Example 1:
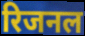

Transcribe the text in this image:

रिजनल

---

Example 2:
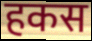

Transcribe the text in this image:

हकस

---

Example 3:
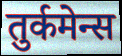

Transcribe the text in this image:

तुर्कमेन्स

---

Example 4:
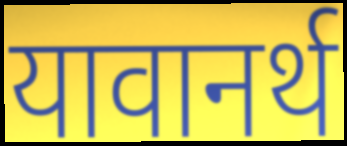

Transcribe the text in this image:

यावानर्थ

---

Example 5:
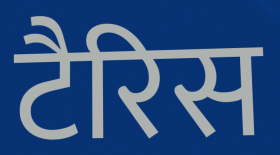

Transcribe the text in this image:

टैरिस